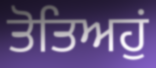
ਤੋਤਿਅਹੁਂ